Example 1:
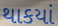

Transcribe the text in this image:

થાકયાં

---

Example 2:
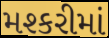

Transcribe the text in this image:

મશ્કરીમાં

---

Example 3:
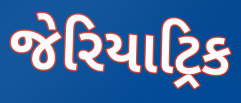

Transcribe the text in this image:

જેરિયાટ્રિક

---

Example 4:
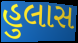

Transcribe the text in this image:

હુલાસ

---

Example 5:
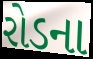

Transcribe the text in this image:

રોડના